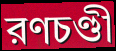
রণচণ্ডী